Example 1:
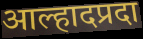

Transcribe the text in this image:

आल्हादप्रदा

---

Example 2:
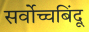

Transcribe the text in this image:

सर्वोच्चबिंदू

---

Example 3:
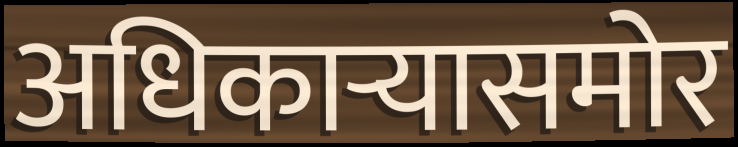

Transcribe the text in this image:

अधिकाऱ्यासमोर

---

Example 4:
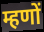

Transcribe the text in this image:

म्हणों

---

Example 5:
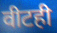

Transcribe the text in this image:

वीटही